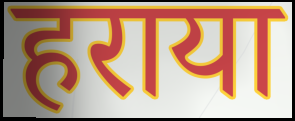
हराया